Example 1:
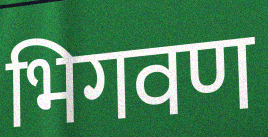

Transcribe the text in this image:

भिगवण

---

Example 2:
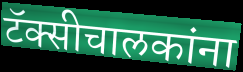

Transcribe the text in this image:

टॅक्सीचालकांना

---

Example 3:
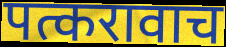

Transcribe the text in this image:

पत्करावाच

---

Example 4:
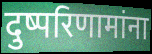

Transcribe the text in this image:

दुष्परिणामांना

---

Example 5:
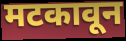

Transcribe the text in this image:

मटकावून